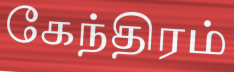
கேந்திரம்